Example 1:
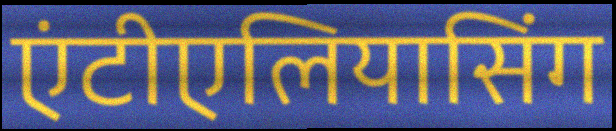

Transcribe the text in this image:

एंटीएलियासिंग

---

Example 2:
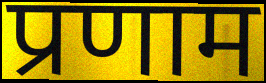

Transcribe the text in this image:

प्रणाम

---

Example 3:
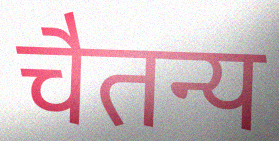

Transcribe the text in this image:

चैतन्य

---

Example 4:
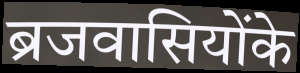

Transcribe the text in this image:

ब्रजवासियोंके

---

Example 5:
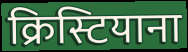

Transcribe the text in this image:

क्रिस्टियाना